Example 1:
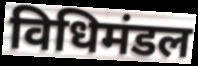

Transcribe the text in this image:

विधिमंडल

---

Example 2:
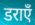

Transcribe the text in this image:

डराएँ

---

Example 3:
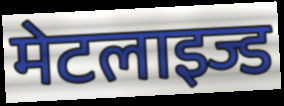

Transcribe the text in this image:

मेटलाइज्ड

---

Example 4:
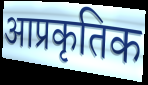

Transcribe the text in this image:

आप्रकृतिक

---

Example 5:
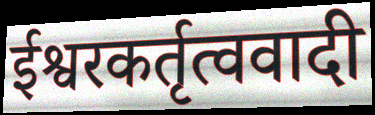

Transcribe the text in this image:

ईश्वरकर्तृत्ववादी